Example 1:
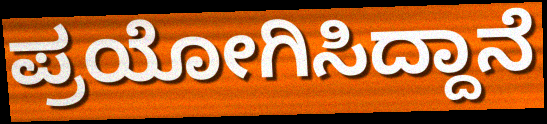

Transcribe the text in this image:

ಪ್ರಯೋಗಿಸಿದ್ದಾನೆ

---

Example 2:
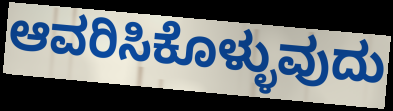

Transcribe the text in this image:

ಆವರಿಸಿಕೊಳ್ಳುವುದು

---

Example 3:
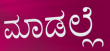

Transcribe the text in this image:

ಮಾಡಲ್ಲೆ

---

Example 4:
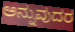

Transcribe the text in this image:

ಅನ್ನುವುದರ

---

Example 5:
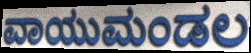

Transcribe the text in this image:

ವಾಯುಮಂಡಲ